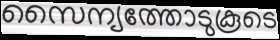
സൈന്യത്തോടുകൂടെ